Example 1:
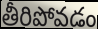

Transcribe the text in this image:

తీరిపోవడం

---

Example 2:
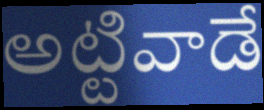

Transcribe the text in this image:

అట్టివాడే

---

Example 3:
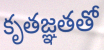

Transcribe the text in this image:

కృతజ్ఞతతో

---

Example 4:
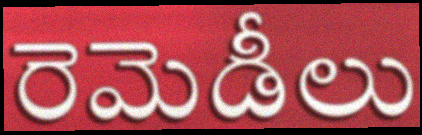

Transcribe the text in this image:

రెమెడీలు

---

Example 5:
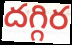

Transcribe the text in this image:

దగ్గిర